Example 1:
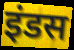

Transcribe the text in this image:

इंडस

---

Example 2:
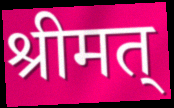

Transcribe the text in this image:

श्रीमत्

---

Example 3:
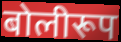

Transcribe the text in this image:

बोलीरूप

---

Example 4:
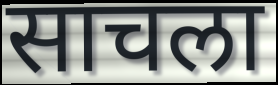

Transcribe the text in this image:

साचला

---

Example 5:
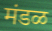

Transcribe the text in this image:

मंडळ